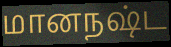
மானநஷ்ட